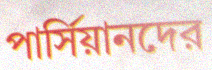
পার্সিয়ানদের